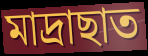
মাদ্ৰাছাত